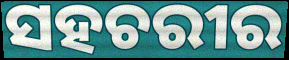
ସହଚରୀର